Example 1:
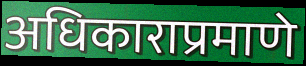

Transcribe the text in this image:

अधिकाराप्रमाणे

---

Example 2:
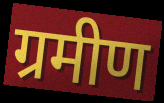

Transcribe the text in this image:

ग्रमीण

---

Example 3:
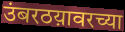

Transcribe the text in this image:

उंबरठय़ावरच्या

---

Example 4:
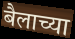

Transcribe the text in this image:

बैलाच्या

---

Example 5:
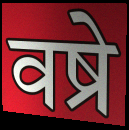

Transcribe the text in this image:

वष्रे